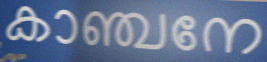
കാഞ്ചനേ